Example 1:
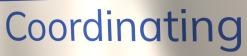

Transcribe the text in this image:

Coordinating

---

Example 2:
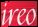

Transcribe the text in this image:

ireo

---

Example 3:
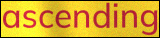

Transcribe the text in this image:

ascending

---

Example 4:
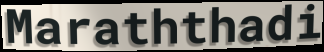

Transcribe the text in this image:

Maraththadi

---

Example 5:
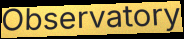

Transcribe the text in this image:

Observatory